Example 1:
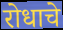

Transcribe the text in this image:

रोधाचे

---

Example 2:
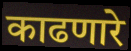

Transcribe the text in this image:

काढणारे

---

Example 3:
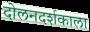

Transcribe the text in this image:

दोलनदर्शकाला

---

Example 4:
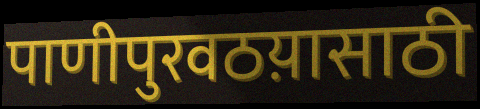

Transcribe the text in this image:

पाणीपुरवठय़ासाठी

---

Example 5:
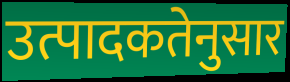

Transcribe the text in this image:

उत्पादकतेनुसार